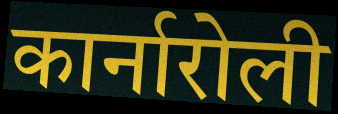
कार्नारोली